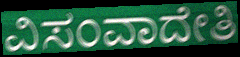
ವಿಸಂವಾದೇತಿ